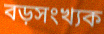
বড়সংখ্যক